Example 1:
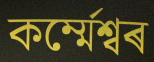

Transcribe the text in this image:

কৰ্ম্মেশ্বৰ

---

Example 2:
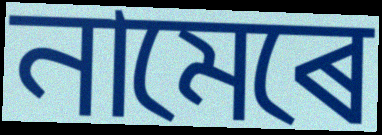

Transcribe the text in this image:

নামেৰে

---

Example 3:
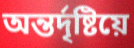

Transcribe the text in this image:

অন্তৰ্দৃষ্টিয়ে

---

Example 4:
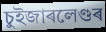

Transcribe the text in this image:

চুইজাৰলেণ্ডৰ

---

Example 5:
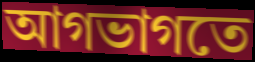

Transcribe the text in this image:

আগভাগতে